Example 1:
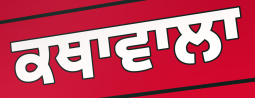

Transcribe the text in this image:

ਕਥਾਵਾਲਾ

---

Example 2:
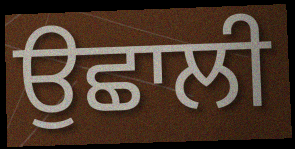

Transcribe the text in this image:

ਉਛਾਲੀ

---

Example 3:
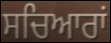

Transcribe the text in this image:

ਸਚਿਆਰਾਂ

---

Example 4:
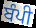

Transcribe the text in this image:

ਬੰਪੀ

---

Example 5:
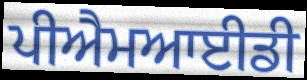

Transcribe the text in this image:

ਪੀਐਮਆਈਡੀ